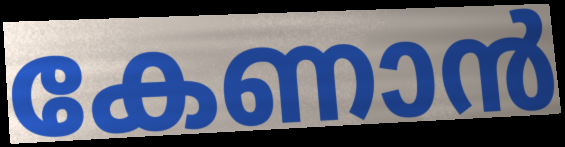
കേണാൻ